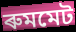
ৰুমমেট